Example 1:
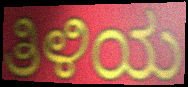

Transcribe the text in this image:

ತಿಳಿಯ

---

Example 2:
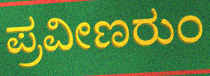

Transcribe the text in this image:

ಪ್ರವೀಣರುಂ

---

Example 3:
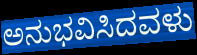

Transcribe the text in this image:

ಅನುಭವಿಸಿದವಳು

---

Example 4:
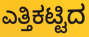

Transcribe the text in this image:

ಎತ್ತಿಕಟ್ಟಿದ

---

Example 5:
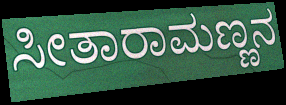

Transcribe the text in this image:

ಸೀತಾರಾಮಣ್ಣನ